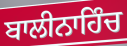
ਬਾਲੀਨਾਹਿੰਚ